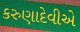
કરુણાદેવીએ